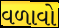
વળાવો